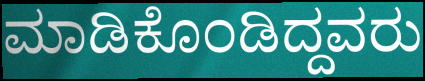
ಮಾಡಿಕೊಂಡಿದ್ದವರು